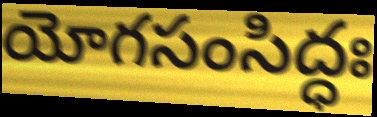
యోగసంసిద్ధః